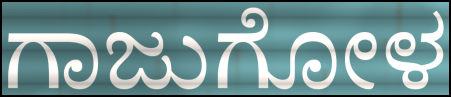
ಗಾಜುಗೋಳ